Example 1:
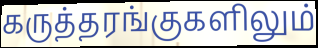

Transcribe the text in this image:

கருத்தரங்குகளிலும்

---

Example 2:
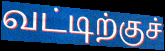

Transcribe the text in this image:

வட்டிற்குச்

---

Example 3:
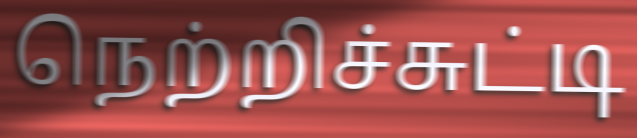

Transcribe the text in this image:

நெற்றிச்சுட்டி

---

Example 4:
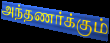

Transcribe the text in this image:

அந்தணர்க்கும்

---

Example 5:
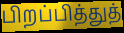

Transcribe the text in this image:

பிறப்பித்துத்